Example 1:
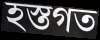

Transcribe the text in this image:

হস্তগত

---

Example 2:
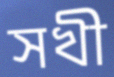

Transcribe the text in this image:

সখী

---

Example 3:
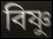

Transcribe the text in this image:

বিষ্ণু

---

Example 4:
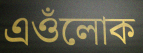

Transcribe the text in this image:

এওঁলোক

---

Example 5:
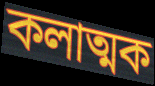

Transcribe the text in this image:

কলাত্মক